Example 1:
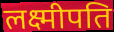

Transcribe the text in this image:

लक्ष्मीपति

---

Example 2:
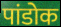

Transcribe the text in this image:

पांडोक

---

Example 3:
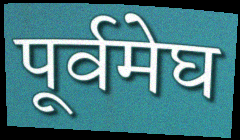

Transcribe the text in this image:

पूर्वमेघ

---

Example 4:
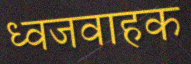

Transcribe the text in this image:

ध्वजवाहक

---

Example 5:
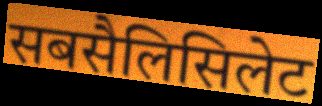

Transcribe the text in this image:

सबसैलिसिलेट